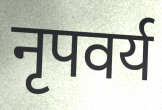
नृपवर्य